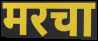
मरचा